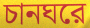
চানঘরে